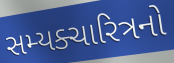
સમ્યક્ચારિત્રનો